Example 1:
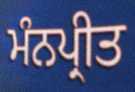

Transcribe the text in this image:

ਮੰਨਪ੍ਰੀਤ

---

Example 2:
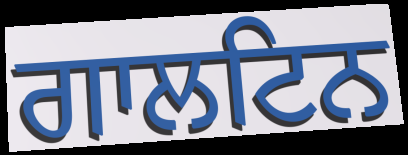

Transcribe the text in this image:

ਗਾਲਟਿਨ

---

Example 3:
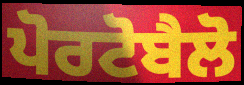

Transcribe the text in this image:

ਪੋਰਟੋਬੈਲੋ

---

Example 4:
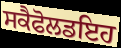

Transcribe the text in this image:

ਸਕੈਫੋਲਡਇਹ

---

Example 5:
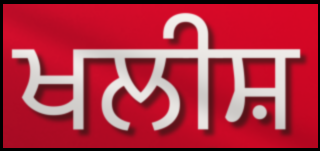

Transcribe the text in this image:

ਖਲੀਸ਼